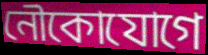
নৌকোযোগে